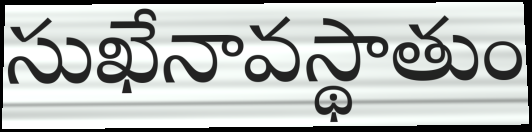
సుఖేనావస్థాతుం